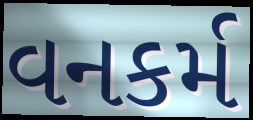
વનકર્મ